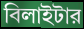
বিলাইটার